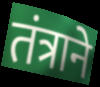
तंत्राने